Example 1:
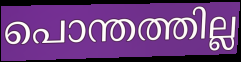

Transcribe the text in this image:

പൊന്തത്തില്ല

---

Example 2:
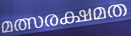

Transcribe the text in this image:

മത്സരക്ഷമത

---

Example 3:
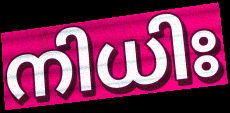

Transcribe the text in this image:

നിധിഃ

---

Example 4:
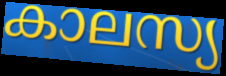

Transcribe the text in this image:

കാലസ്യ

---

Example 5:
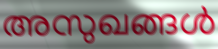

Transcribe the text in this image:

അസുഖങ്ങൾ